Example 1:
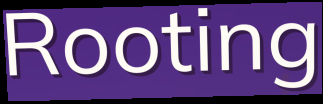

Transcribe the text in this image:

Rooting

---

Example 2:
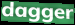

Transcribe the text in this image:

dagger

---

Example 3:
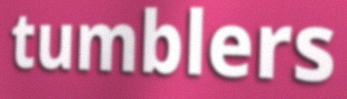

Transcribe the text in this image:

tumblers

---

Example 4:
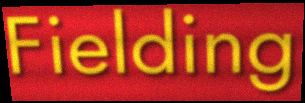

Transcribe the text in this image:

Fielding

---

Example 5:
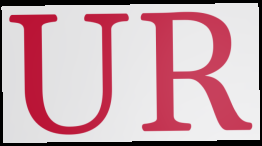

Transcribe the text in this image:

UR